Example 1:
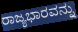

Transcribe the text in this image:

ರಾಜ್ಯಭಾರವನ್ನು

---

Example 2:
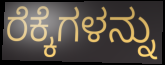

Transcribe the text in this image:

ರೆಕ್ಕೆಗಳನ್ನು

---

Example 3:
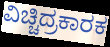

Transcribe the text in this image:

ವಿಚ್ಚಿದ್ರಕಾರಕ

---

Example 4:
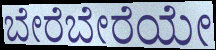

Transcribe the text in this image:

ಬೇರೆಬೇರೆಯೇ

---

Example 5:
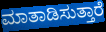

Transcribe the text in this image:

ಮಾತಾಡಿಸುತ್ತಾರೆ